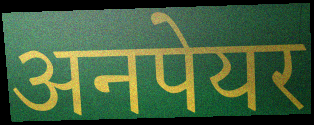
अनपेयर